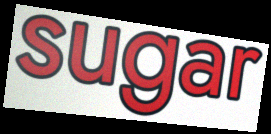
sugar